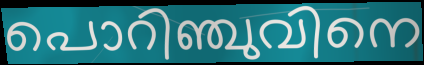
പൊറിഞ്ചുവിനെ